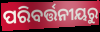
ପରିବର୍ତ୍ତନୀୟରୁ